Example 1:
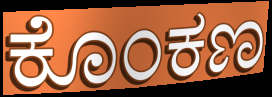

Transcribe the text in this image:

ಕೊಂಕಣ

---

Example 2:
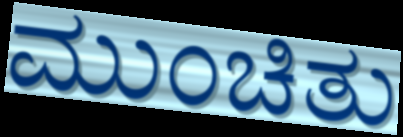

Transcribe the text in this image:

ಮುಂಚಿತು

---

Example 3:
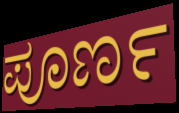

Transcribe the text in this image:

ಪೂರ್ಣ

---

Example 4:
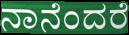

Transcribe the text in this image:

ನಾನೆಂದರೆ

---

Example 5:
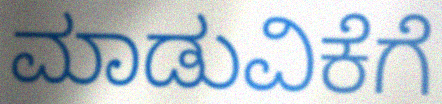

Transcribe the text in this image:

ಮಾಡುವಿಕೆಗೆ